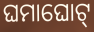
ଘମାଘୋଟ୍